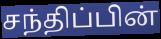
சந்திப்பின்